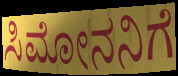
ಸಿಮೋನನಿಗೆ